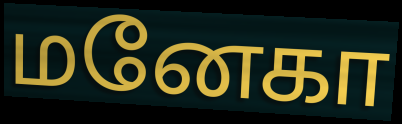
மனேகா